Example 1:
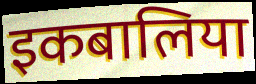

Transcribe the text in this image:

इकबालिया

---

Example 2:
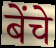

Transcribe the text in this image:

बेंचे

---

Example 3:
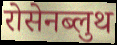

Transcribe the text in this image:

रोसेनब्लुथ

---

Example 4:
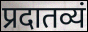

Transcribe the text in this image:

प्रदातव्यं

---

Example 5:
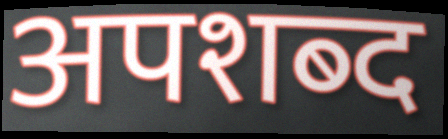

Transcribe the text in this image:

अपशब्‍द